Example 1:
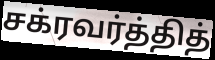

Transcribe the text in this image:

சக்ரவர்த்தித்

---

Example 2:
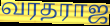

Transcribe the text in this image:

வரதராஜ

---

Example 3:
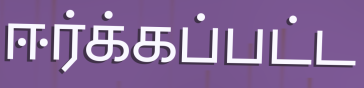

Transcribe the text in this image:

ஈர்க்கப்பட்ட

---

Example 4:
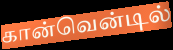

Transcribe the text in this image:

கான்வென்டில்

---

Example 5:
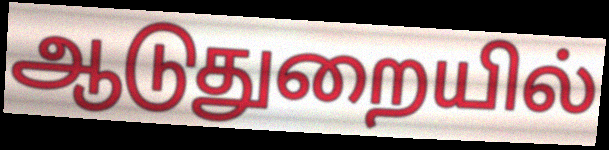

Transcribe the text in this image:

ஆடுதுறையில்